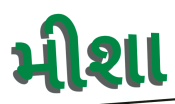
મીશા